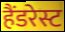
हैंडरेस्ट